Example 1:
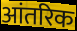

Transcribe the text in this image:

आंतरिक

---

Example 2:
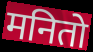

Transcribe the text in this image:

मनितो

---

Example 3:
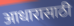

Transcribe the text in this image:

आधारासाठी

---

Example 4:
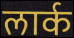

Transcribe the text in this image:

लार्क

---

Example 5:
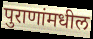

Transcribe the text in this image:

पुराणांमधील